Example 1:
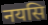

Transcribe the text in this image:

नयसि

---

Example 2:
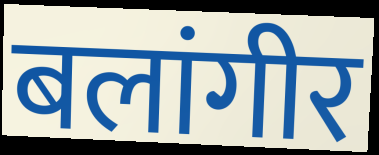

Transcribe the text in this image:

बलांगीर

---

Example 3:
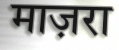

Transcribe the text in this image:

माज़रा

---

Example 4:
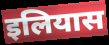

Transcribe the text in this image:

इलियास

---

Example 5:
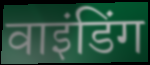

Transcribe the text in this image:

वाइंडिंग